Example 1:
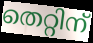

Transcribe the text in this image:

തെറ്റിന്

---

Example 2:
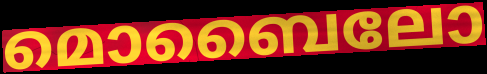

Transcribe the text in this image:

മൊബൈലോ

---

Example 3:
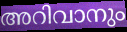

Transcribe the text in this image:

അറിവാനും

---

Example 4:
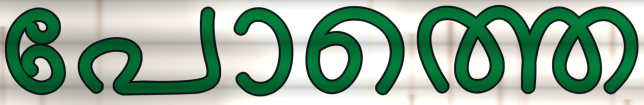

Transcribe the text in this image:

പോത്തെ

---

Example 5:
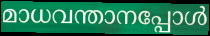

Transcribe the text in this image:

മാധവന്താനപ്പോൾ